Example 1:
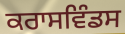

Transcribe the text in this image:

ਕਰਾਸਵਿੰਡਸ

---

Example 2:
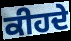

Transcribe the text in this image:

ਕੀਹਦੇ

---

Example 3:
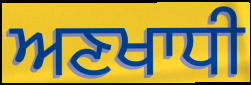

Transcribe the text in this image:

ਅਣਖਾਧੀ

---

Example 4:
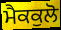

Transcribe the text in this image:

ਮੈਕਕੁਲੋ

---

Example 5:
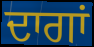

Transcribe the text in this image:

ਦਾਗਾਂ